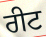
ਰੀਟ